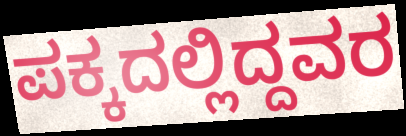
ಪಕ್ಕದಲ್ಲಿದ್ದವರ